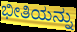
ಭೀತಿಯನ್ನು